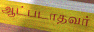
ஆட்படாதவர்